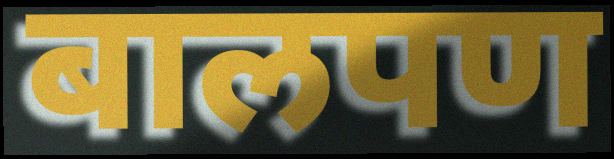
बालपण